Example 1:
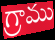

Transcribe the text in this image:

గ్రాము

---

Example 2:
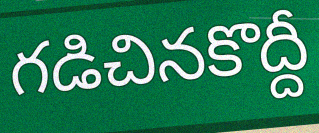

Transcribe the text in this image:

గడిచినకొద్దీ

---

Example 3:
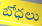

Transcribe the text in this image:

బోధలు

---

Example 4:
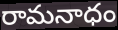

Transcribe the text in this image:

రామనాధం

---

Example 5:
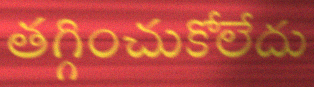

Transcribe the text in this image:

తగ్గించుకోలేదు